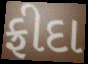
ફ્રીદા